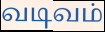
வடிவம்